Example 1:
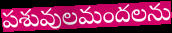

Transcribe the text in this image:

పశువులమందలను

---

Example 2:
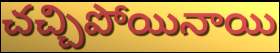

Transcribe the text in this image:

చచ్చిపోయినాయి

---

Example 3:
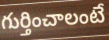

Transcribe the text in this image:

గుర్తించాలంటే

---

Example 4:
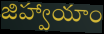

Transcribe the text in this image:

జిహ్వాయాం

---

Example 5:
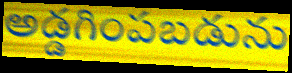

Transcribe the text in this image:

అడ్డగింపబడును